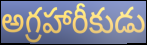
అగ్రహారీకుడు